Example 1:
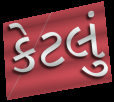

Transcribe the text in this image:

કેટલું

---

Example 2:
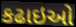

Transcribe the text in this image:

કઢાઇઓ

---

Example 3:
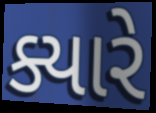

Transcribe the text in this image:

ક્યારે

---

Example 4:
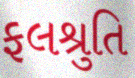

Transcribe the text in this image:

ફલશ્રુતિ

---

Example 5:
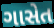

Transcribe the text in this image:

ગાસેત